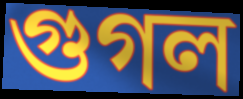
গুগল